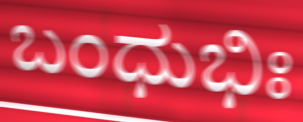
ಬಂಧುಭಿಃ